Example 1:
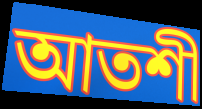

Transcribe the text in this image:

আতশী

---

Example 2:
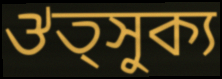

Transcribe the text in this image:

ঔত্সুক্য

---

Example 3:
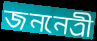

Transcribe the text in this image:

জননেত্রী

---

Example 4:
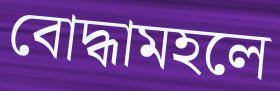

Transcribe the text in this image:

বোদ্ধামহলে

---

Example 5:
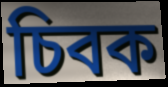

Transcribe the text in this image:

চিবক